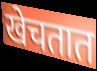
खेचतात